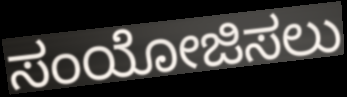
ಸಂಯೋಜಿಸಲು